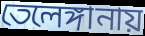
তেলেঙ্গানায়